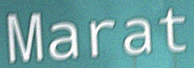
Marat